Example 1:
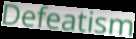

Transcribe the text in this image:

Defeatism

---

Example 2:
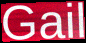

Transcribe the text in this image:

Gail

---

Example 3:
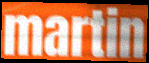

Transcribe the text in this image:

martin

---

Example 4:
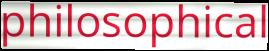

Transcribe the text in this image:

philosophical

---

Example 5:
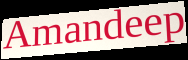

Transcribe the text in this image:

Amandeep